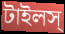
টাইলস্